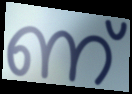
ണ്